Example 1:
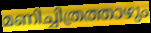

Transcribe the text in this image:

മണിച്ചിത്രത്താഴും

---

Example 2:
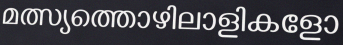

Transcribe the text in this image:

മത്സ്യത്തൊഴിലാളികളോ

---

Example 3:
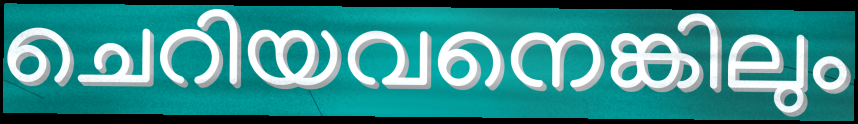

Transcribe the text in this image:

ചെറിയവനെങ്കിലും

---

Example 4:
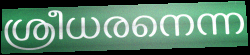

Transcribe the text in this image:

ശ്രീധരനെന്ന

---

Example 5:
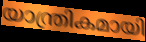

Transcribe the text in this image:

യാന്ത്രികമായി